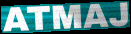
ATMAJ